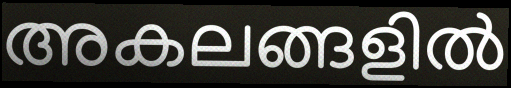
അകലങ്ങളിൽ